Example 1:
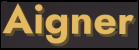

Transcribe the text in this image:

Aigner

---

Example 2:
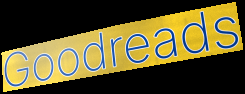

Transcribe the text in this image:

Goodreads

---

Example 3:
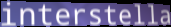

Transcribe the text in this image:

interstella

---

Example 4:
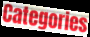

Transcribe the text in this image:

Categories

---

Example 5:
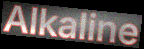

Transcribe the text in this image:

Alkaline